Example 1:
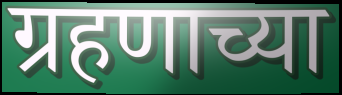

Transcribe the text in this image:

ग्रहणाच्या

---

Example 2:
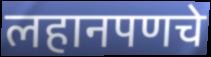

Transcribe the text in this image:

लहानपणचे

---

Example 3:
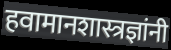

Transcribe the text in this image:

हवामानशास्त्रज्ञांनी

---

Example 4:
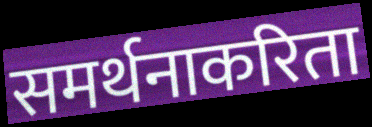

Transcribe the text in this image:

समर्थनाकरिता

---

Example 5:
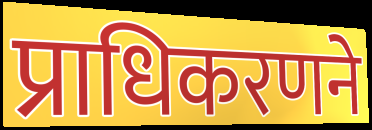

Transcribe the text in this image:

प्राधिकरणने